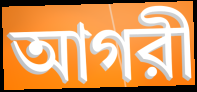
আগরী